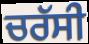
ਚਰੱਸੀ